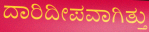
ದಾರಿದೀಪವಾಗಿತ್ತು